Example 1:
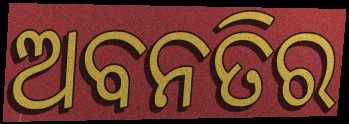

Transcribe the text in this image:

ଅବନତିର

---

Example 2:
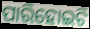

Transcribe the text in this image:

ପାରିହୋଇଚି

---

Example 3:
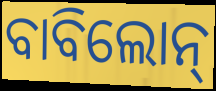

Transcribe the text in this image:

ବାବିଲୋନ୍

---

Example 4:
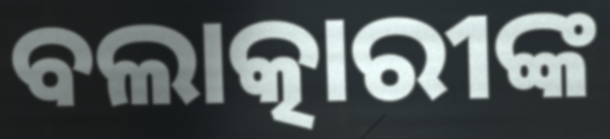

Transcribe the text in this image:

ବଲାତ୍କାରୀଙ୍କ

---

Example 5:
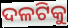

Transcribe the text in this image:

ଦଳଟିକୁ